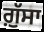
ਗ਼ੁੱਸਾ